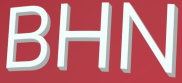
BHN